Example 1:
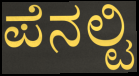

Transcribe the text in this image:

ಪೆನಲ್ಟಿ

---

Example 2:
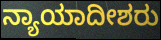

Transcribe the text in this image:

ನ್ಯಾಯಾದೀಶರು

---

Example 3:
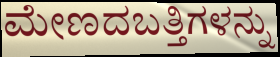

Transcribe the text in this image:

ಮೇಣದಬತ್ತಿಗಳನ್ನು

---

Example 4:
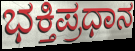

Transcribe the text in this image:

ಭಕ್ತಿಪ್ರಧಾನ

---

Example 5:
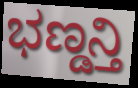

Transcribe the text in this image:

ಭಣ್ಡನ್ತಿ